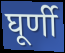
घूर्णी